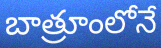
బాత్రూంలోనే